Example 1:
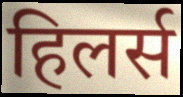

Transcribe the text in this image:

हिलर्स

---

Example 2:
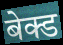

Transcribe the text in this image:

बेक्ड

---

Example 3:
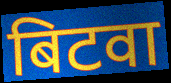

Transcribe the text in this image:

बिटवा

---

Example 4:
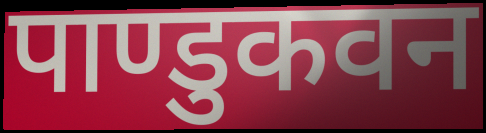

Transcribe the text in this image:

पाण्डुकवन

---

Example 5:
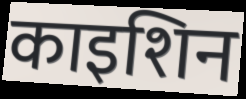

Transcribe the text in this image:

काइशिन